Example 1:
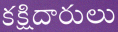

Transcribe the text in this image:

కక్షిదారులు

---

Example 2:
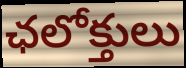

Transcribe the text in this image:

ఛలోక్తులు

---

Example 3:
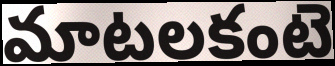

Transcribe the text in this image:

మాటలకంటె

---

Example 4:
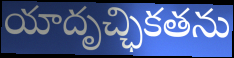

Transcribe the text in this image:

యాదృచ్ఛికతను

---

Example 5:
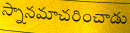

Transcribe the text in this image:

స్నానమాచరించాడు